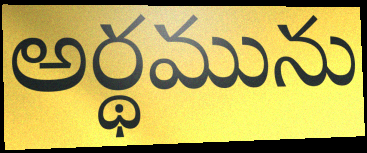
అర్థమును